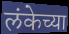
लंकेच्या